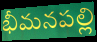
భీమనపల్లి